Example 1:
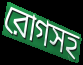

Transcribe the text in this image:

রোগসহ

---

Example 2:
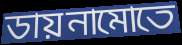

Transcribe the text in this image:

ডায়নামোতে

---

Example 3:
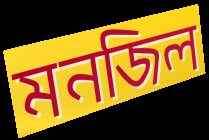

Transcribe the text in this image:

মনজিল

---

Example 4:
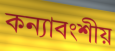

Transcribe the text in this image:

কন্যাবংশীয়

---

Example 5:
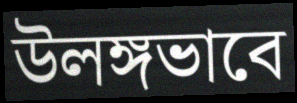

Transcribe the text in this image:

উলঙ্গভাবে